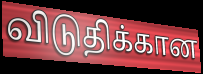
விடுதிக்கான